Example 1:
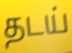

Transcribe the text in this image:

தடய்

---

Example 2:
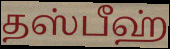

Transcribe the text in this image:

தஸ்பீஹ்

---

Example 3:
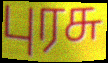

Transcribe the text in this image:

புரசு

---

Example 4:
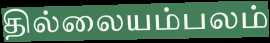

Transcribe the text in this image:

தில்லையம்பலம்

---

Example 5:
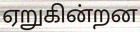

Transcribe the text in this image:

ஏறுகின்றன